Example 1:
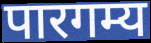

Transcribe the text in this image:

पारगम्य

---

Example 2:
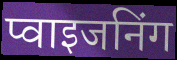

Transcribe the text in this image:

प्वाइजनिंग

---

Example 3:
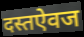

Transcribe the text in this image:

दस्तऐवज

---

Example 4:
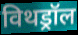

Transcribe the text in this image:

विथड्रॉल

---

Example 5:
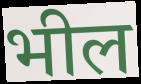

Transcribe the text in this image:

भील